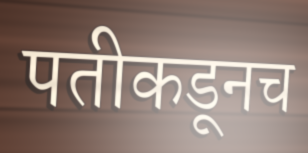
पतीकडूनच